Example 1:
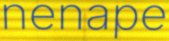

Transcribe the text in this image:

nenape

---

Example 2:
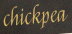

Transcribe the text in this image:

chickpea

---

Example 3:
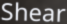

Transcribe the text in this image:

Shear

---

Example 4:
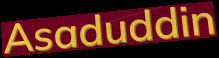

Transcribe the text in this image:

Asaduddin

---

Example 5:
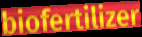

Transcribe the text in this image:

biofertilizer